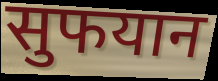
सुफयान